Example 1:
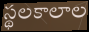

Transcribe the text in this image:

స్థలకాలాల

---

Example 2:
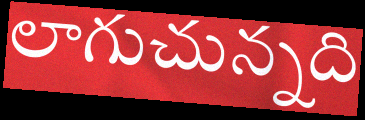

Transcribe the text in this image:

లాగుచున్నది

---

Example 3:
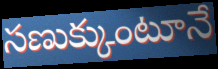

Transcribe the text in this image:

సణుక్కుంటూనే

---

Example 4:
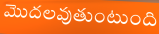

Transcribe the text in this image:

మొదలవుతుంటుంది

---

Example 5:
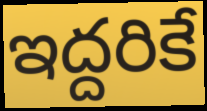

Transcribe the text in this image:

ఇద్దరికే